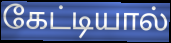
கேட்டியால்